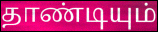
தாண்டியும்